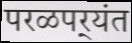
परळपर्यंत